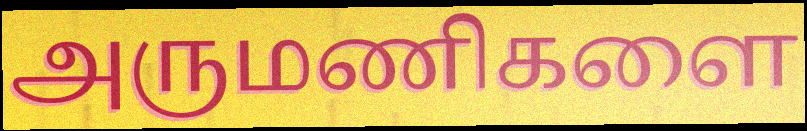
அருமணிகளை